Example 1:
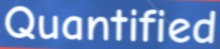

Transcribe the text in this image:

Quantified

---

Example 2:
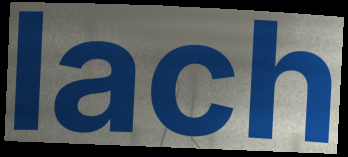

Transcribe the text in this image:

lach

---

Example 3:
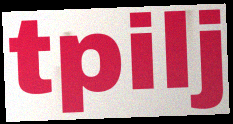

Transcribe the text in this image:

tpilj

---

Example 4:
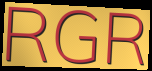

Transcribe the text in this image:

RGR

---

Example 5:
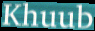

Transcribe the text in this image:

Khuub